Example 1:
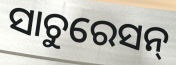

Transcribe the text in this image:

ସାଚୁରେସନ୍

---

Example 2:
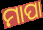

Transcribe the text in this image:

ମାପା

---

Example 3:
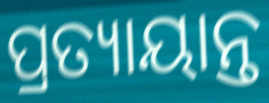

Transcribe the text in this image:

ପ୍ରତ୍ୟାୟାନ୍ତ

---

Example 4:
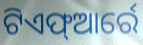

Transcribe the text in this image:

ଟିଏଫ୍ଆର୍ରେ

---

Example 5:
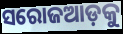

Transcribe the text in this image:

ସରୋଜଆଡ଼କୁ